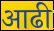
आढी